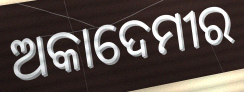
ଅକାଦେମୀର